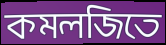
কমলজিতে